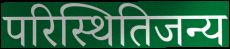
परिस्थितिजन्य